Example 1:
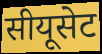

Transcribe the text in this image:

सीयूसेट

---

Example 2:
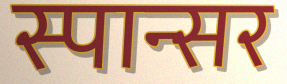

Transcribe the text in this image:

स्पान्सर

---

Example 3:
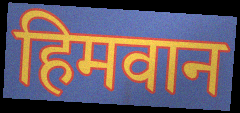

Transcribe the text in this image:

हिमवान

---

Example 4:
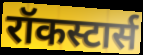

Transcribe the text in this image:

रॉकस्टार्स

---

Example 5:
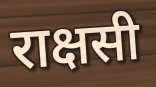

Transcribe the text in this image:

राक्षसी